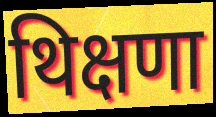
थिक्षणा